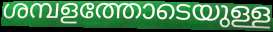
ശമ്പളത്തോടെയുള്ള